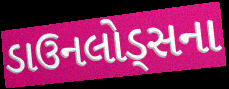
ડાઉનલોડ્સના